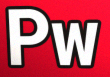
Pw